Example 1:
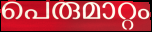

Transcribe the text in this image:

പെരുമാറ്റം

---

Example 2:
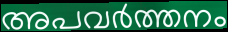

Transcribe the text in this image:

അപവർത്തനം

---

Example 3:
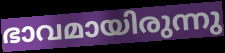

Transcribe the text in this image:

ഭാവമായിരുന്നു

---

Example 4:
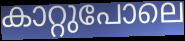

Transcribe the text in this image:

കാറ്റുപോലെ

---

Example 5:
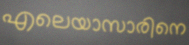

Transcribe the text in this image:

എലെയാസാരിനെ